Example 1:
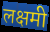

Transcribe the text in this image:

लक्षमी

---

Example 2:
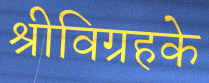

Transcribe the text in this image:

श्रीविग्रहके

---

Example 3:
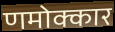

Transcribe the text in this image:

णमोक्कार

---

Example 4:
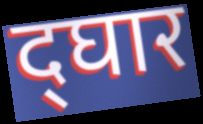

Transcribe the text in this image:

द्घार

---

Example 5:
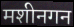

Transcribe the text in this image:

मशीनगन